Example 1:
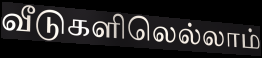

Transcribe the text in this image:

வீடுகளிலெல்லாம்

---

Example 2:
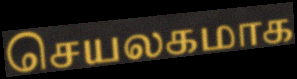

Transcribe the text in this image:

செயலகமாக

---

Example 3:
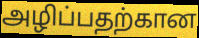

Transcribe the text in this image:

அழிப்பதற்கான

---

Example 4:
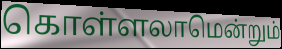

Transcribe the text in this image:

கொள்ளலாமென்றும்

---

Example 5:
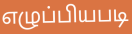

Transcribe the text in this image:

எழுப்பியபடி